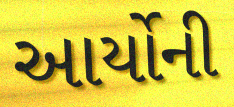
આર્યોની